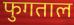
फुगताल